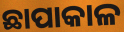
ଛାପାକାଳ